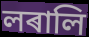
লৰালি